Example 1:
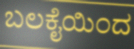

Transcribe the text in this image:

ಬಲಕೈಯಿಂದ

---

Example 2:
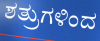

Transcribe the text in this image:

ಶತ್ರುಗಳಿಂದ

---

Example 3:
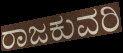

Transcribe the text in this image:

ರಾಜಕುವರಿ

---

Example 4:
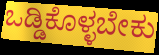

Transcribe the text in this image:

ಒಡ್ಡಿಕೊಳ್ಳಬೇಕು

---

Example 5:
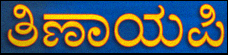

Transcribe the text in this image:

ತಿಣಾಯಪಿ